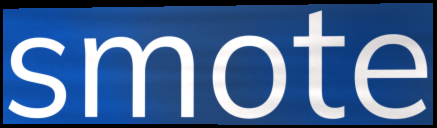
smote